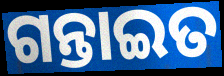
ଗନ୍ତାଇତ